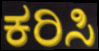
ಕರಿಸಿ